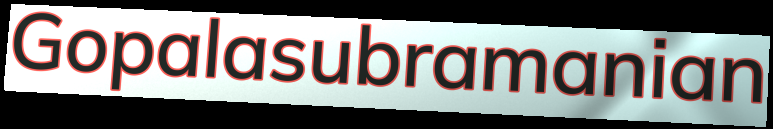
Gopalasubramanian